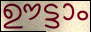
ഊട്ടാം